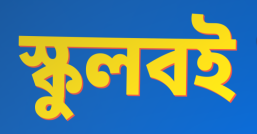
স্কুলবই